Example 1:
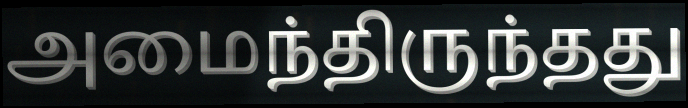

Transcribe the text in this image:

அமைந்திருந்தது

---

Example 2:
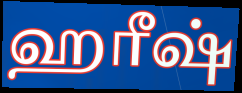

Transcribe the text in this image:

ஹரீஷ்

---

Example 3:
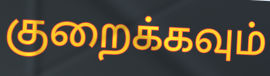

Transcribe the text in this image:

குறைக்கவும்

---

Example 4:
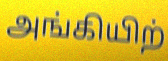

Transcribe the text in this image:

அங்கியிற்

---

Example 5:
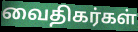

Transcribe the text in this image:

வைதிகர்கள்